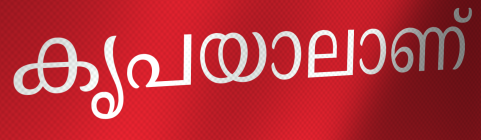
കൃപയാലാണ്